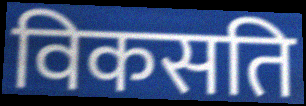
विकसति